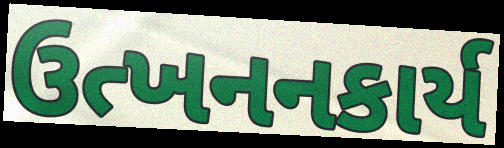
ઉત્ખનનકાર્ય